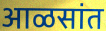
आळसांत